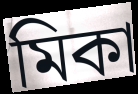
মিকা